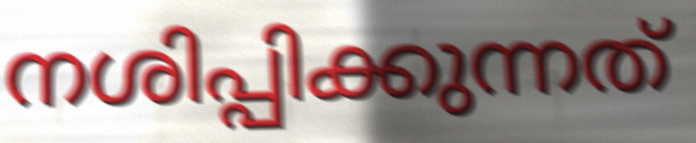
നശിപ്പിക്കുന്നത്